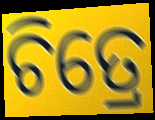
ଚିତ୍ରେ